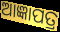
ଆଜ୍ଞାପତ୍ର